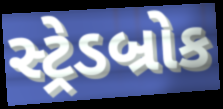
સ્ટ્રેડબ્રોક